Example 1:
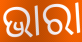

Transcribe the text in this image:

ଭାରା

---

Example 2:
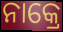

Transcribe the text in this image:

ନାକ୍ରେ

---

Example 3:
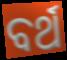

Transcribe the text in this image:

ବର୍ଥ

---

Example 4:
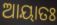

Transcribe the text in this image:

ଆୟାତଃ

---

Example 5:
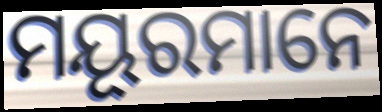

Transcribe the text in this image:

ମୟୂରମାନେ